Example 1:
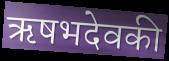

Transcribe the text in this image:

ऋषभदेवकी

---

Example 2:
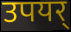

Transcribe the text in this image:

उपयर्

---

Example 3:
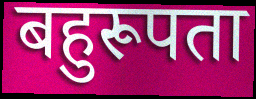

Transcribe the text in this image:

बहुरूपता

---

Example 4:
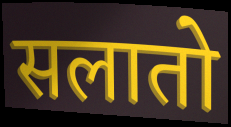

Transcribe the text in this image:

सलातो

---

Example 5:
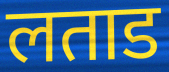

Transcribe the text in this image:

लताड